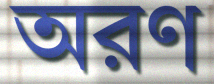
অরণ